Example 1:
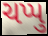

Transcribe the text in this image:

ચપ્પુ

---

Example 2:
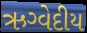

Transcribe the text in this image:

ઋગ્વેદીય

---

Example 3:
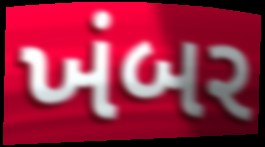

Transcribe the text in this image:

ખંબર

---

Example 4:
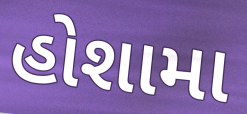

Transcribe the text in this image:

હોશામા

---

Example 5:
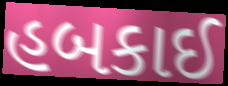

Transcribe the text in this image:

હબકાઈ